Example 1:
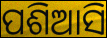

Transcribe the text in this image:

ପଶିଆସି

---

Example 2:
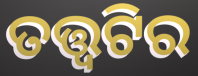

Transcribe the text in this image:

ତତ୍ତ୍ଵଟିର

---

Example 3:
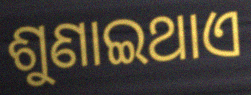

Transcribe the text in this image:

ଶୁଣାଇଥାଏ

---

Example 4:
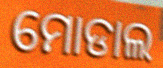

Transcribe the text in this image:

ମୋଡାଲ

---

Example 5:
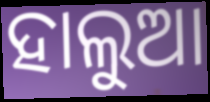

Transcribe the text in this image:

ହାଲୁଆ